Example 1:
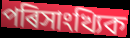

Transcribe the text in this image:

পৰিসাংখ্যিক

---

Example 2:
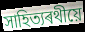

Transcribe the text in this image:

সাহিত্যৰথীয়ে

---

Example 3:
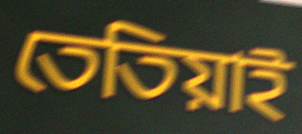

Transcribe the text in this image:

তেতিয়াই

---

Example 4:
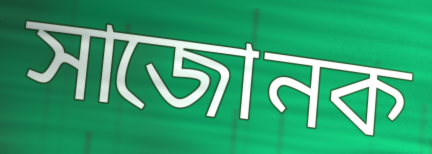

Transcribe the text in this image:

সাজোনক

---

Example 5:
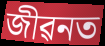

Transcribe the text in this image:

জীৱনত